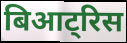
बिआट्रिस